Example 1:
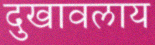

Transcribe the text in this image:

दुखावलाय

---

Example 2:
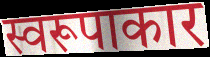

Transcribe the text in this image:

स्वरूपाकार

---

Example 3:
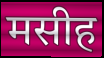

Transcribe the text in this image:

मसीह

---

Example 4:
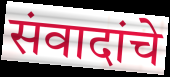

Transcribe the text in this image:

संवादांचे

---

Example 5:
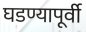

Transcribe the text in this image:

घडण्यापूर्वी